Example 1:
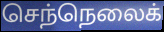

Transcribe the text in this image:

செந்நெலைக்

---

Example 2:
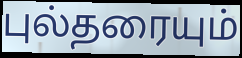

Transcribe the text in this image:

புல்தரையும்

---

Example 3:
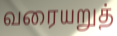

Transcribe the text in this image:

வரையறுத்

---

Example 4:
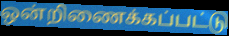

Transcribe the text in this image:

ஒன்றிணைக்கப்பட்டு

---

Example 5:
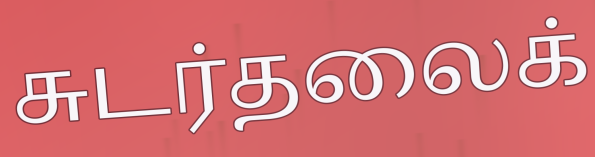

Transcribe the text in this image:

சுடர்தலைக்